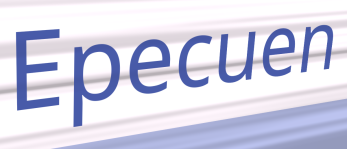
Epecuen